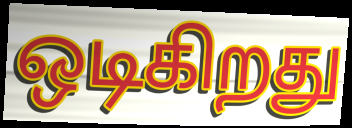
ஒடிகிறது